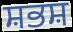
ਸ਼ਭਸ਼